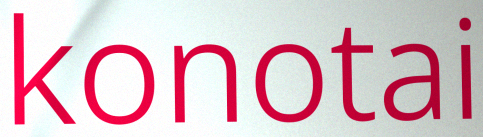
konotai